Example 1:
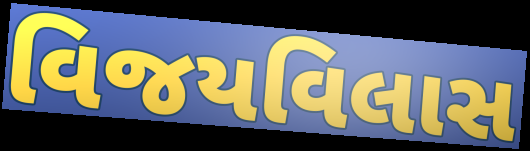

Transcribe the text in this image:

વિજયવિલાસ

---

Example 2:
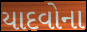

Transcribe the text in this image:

યાદવોના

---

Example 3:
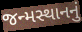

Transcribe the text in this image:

જન્મસ્થાનનું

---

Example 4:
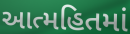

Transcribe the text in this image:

આત્મહિતમાં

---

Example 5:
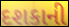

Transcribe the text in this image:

દશકાની